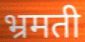
भ्रमती